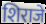
शिराजे